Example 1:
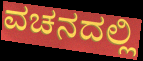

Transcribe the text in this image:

ವಚನದಲ್ಲಿ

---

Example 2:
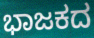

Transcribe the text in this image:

ಭಾಜಕದ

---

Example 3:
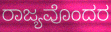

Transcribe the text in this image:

ರಾಜ್ಯವೊಂದರ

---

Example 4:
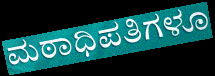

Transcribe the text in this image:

ಮಠಾಧಿಪತಿಗಳೂ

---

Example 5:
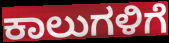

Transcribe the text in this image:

ಕಾಲುಗಳಿಗೆ